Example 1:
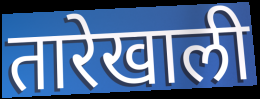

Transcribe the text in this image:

तारेखाली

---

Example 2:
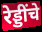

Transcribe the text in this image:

रेड्डींचे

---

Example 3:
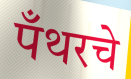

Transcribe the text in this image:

पँथरचे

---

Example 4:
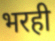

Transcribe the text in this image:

भरही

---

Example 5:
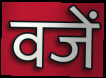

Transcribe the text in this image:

वजें